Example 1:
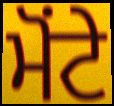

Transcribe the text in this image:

ਮੋਂਟੇ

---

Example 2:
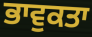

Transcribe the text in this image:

ਭਾਵੁਕਤਾ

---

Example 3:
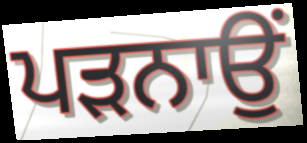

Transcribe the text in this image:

ਪਡ਼ਨਾਉਂ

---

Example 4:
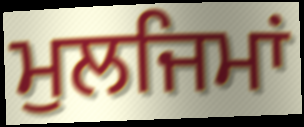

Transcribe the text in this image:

ਮੁਲਜਿਮਾਂ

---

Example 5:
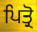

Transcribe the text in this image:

ਪਿਤ੍ਰੋ